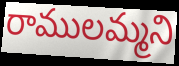
రాములమ్మని